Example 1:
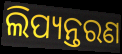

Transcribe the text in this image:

ଲିପ୍ୟନ୍ତରଣ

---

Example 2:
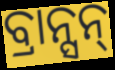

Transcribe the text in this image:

ବ୍ରାନ୍ସନ୍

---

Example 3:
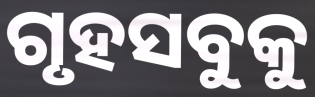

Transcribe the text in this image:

ଗୃହସବୁକୁ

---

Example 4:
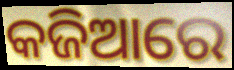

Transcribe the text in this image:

କଜିଆରେ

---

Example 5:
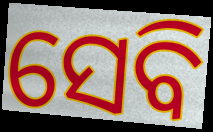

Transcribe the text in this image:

ସେବି